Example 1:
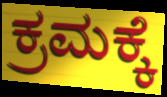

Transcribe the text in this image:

ಕ್ರಮಕ್ಕೆ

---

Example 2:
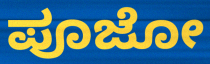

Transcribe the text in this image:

ಪೂಜೋ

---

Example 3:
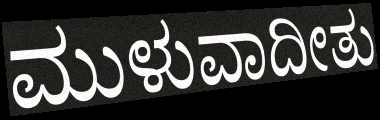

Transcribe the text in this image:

ಮುಳುವಾದೀತು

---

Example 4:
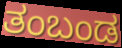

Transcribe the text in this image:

ತಂಬಂಡ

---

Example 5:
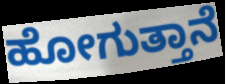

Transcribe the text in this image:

ಹೋಗುತ್ತಾನೆ